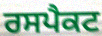
ਰਸਪੈਕਟ